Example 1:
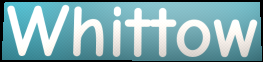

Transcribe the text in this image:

Whittow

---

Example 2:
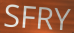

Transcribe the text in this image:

SFRY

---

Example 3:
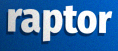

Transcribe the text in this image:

raptor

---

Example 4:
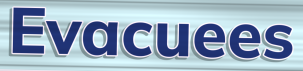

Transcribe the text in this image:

Evacuees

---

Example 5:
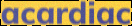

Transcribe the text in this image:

acardiac